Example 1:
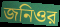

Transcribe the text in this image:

জনিওর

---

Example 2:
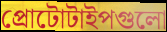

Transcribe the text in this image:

প্রোটোটাইপগুলো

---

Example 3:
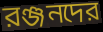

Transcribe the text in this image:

রঞ্জনদের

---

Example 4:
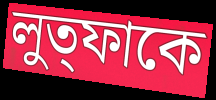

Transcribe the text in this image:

লুত্ফাকে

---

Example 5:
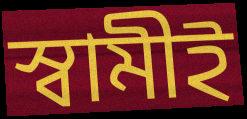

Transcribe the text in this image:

স্বামীই